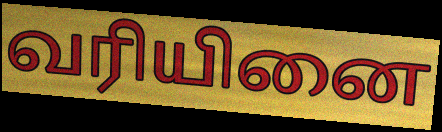
வரியினை